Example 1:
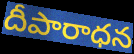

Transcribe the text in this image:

దీపారాధన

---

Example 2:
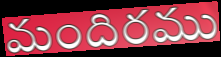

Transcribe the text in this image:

మందిరము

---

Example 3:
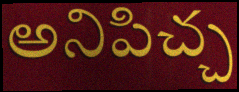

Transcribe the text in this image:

అనిపిచ్చ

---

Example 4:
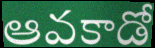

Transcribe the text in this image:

ఆవకాడో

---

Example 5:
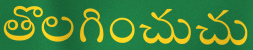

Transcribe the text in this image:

తొలగించుచు